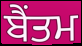
ਬੈਂਤਮ